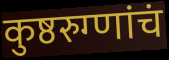
कुष्ठरुग्णांचं